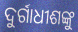
ଦୁର୍ଗାଧୀଶଙ୍କୁ